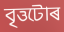
বৃত্তটোৰ